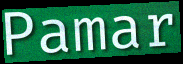
Pamar